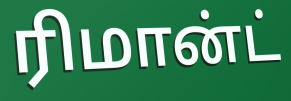
ரிமான்ட்